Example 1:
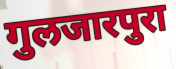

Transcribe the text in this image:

गुलजारपुरा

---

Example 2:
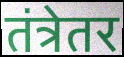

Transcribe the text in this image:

तंत्रेतर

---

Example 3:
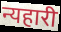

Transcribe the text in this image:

न्यहारी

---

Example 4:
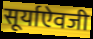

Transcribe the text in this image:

सूर्याऐवजी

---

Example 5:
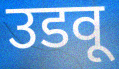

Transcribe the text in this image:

उडवू